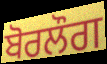
ਬੋਰਲੌਗ